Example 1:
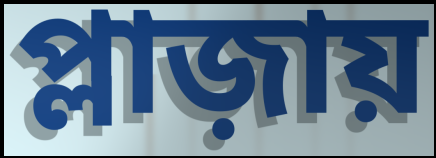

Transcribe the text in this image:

প্লাজ়ায়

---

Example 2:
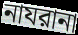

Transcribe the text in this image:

নাযরানা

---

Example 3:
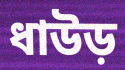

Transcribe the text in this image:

ধাউড়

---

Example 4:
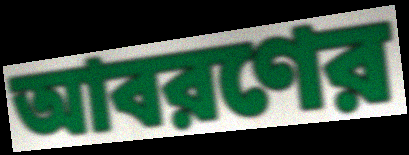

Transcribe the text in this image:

আবরণের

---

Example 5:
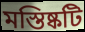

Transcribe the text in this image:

মস্তিষ্কটি